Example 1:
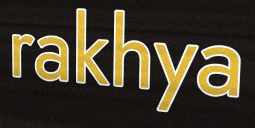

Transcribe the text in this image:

rakhya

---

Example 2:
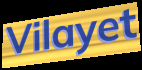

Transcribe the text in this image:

Vilayet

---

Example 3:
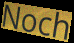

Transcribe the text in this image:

Noch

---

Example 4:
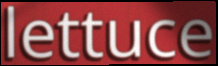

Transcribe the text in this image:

lettuce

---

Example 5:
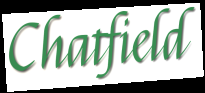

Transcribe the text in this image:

Chatfield